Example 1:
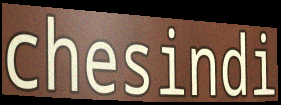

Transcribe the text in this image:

chesindi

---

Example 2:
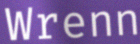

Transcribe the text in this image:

Wrenn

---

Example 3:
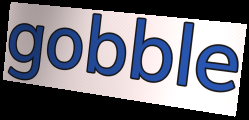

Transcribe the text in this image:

gobble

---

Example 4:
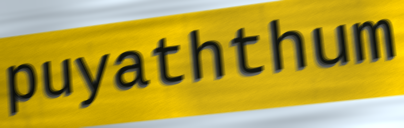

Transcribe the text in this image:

puyaththum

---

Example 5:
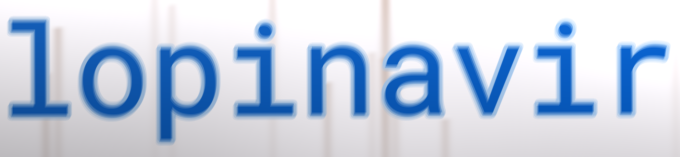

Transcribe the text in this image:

lopinavir